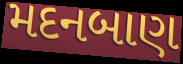
મદનબાણ